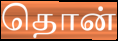
தொன்